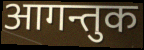
आगन्तुक